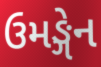
ઉમઙ્ગેન